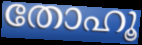
തോഹൂ